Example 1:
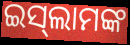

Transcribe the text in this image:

ଇସ୍‌ଲାମଙ୍କ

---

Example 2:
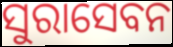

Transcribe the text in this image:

ସୁରାସେବନ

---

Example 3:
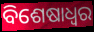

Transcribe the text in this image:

ବିଶେଷାଧ୍ଵର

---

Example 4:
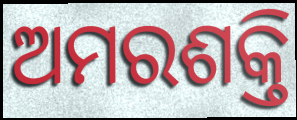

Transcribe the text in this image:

ଅମରଶକ୍ତି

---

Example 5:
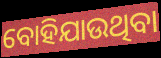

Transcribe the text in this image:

ବୋହିଯାଉଥିବା